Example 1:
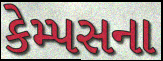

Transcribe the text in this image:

કેમ્પસના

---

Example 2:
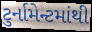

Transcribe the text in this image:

ટુર્નામેન્ટમાંથી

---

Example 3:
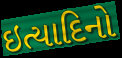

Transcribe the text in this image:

ઇત્યાદિનો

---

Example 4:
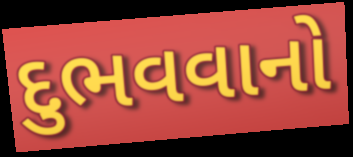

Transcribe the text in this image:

દુભવવાનો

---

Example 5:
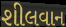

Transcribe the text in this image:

શીલવાન